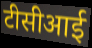
टीसीआई